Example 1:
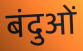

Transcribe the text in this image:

बंदुओं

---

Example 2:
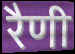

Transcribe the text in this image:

रैणी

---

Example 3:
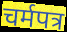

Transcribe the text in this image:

चर्मपत्र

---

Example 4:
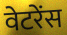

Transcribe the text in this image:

वेटरेंस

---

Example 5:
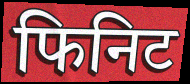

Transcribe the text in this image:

फिनिट